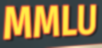
MMLU